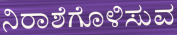
ನಿರಾಶೆಗೊಳಿಸುವ